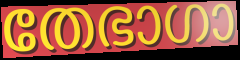
തേഭാഗാ